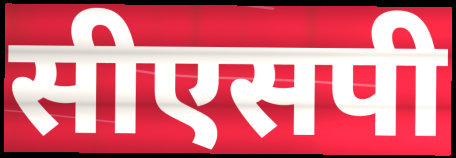
सीएसपी